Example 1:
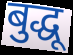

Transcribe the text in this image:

बुद्धू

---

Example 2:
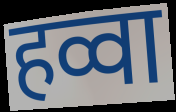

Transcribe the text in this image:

हव्वा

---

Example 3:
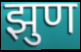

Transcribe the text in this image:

झुण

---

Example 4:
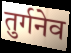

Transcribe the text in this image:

तुर्गनेव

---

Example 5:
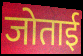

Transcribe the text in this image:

जोताई